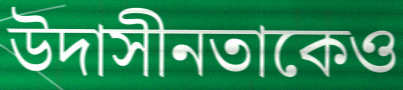
উদাসীনতাকেও